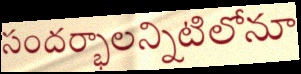
సందర్భాలన్నిటిలోనూ